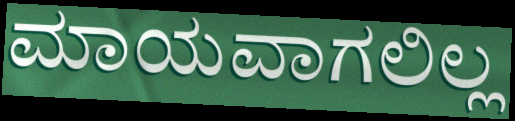
ಮಾಯವಾಗಲಿಲ್ಲ